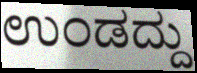
ಉಂಡದ್ದು